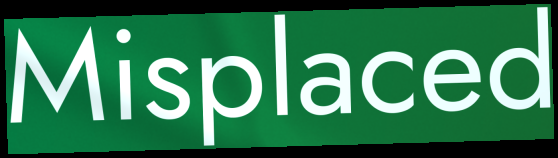
Misplaced